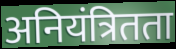
अनियंत्रितता